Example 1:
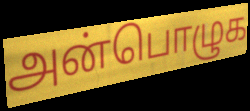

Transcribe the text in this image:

அன்பொழுக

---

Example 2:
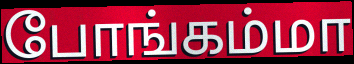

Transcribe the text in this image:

போங்கம்மா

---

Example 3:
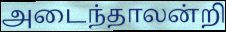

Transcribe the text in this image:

அடைந்தாலன்றி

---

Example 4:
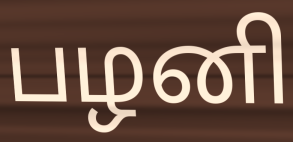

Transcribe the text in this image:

பழனி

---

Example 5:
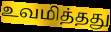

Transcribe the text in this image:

உவமித்தது